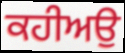
ਕਹੀਅਉ